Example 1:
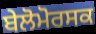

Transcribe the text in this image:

ਬੇਲੋਮੋਰਸਕ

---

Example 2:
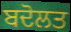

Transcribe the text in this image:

ਬਦੋਲਤ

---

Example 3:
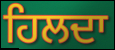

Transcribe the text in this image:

ਹਿਲਦਾ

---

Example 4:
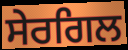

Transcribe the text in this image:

ਸੇਰਗਿਲ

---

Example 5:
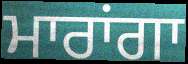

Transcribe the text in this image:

ਮਾਰਾਂਗਾ